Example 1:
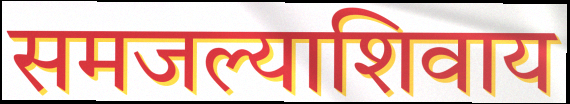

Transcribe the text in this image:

समजल्याशिवाय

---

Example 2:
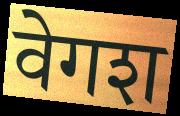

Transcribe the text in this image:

वेगश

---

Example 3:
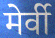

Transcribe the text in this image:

मेर्वी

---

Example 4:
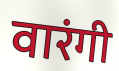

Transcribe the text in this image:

वारंगी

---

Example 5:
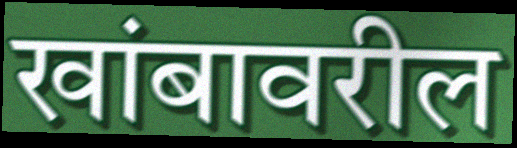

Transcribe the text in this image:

खांबावरील